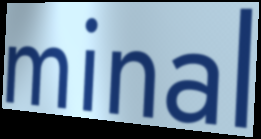
minal